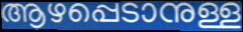
ആഴപ്പെടാനുള്ള